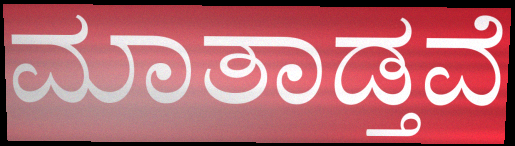
ಮಾತಾಡ್ತವೆ